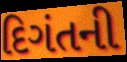
દિગંતની